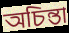
অচিন্তা